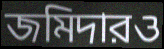
জমিদারও